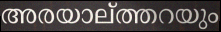
അരയാല്ത്തറയും